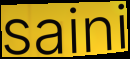
saini